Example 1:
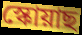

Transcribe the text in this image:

স্কোয়াছ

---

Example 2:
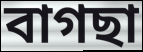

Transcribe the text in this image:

বাগছা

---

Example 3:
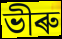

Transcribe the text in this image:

ভীৰু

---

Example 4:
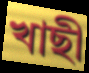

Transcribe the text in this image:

খাছী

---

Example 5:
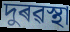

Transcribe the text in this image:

দুৰৱস্থা